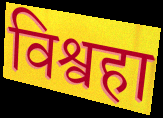
विश्वहा